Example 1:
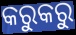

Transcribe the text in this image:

କରୁକରୁ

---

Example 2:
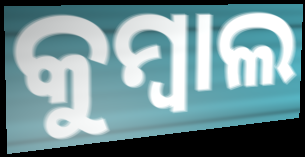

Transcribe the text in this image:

କୁମ୍ବାଲ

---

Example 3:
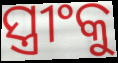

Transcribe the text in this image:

ସ୍ତ୍ରୀଂକୁ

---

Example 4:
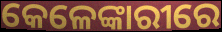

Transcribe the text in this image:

କେଳେଙ୍କାରୀରେ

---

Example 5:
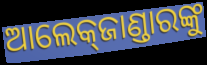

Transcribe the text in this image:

ଆଲେକ୍‌ଜାଣ୍ଡାରଙ୍କୁ